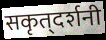
सकृत्‌दर्शनी